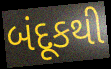
બંદૂકથી